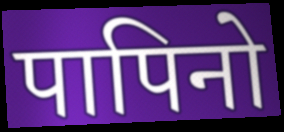
पापिनो